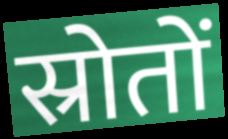
स्रोतों